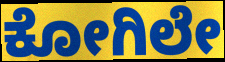
ಕೋಗಿಲೇ